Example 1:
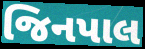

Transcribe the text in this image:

જિનપાલ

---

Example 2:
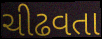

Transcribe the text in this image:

ચીઢવતા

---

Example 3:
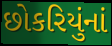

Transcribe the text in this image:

છોકરિયુંનાં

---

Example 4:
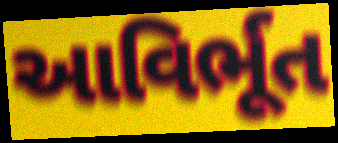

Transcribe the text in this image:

આવિર્ભૂત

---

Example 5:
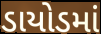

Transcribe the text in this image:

ડાયોડમાં